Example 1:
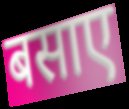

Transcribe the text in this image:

बसाए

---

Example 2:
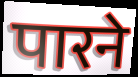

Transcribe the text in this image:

पारने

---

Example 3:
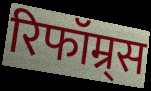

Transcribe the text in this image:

रिफॉम्र्स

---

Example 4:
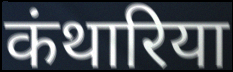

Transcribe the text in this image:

कंथारिया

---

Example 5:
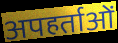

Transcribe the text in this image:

अपहर्ताओं